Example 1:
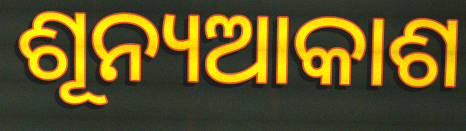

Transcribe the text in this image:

ଶୂନ୍ୟଆକାଶ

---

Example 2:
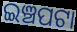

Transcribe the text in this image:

ଇଞ୍ଚପଟା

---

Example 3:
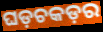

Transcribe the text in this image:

ଘଡ଼ଚକଡ଼ର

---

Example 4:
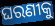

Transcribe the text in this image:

ଘରଣୀକୁ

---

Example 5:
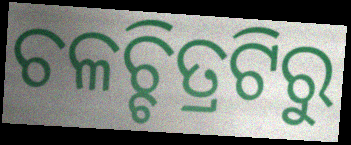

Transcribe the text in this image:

ଚଳଚ୍ଚିତ୍ରଟିରୁ